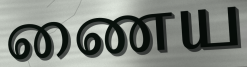
ணைய